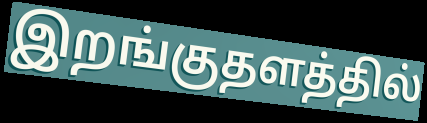
இறங்குதளத்தில்